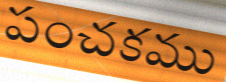
పంచకము